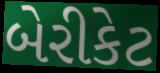
બેરીકેટ